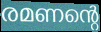
രമണന്റെ